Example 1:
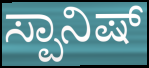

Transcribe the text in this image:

ಸ್ಪಾನಿಷ್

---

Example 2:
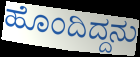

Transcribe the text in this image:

ಹೊಂದಿದ್ದನು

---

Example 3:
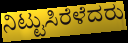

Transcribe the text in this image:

ನಿಟ್ಟುಸಿರೆಳೆದರು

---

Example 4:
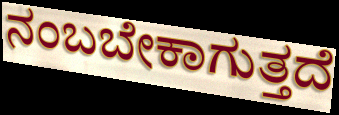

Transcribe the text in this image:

ನಂಬಬೇಕಾಗುತ್ತದೆ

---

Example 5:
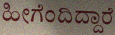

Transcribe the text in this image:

ಹೀಗೆಂದಿದ್ದಾರೆ